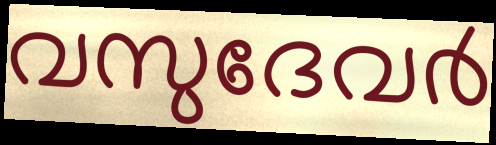
വസുദേവർ